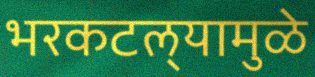
भरकटल्यामुळे